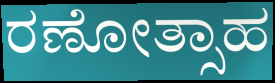
ರಣೋತ್ಸಾಹ